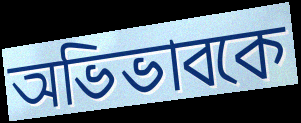
অভিভাবকে